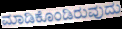
ಮಾಡಿಕೊಂಡಿರುವುದು